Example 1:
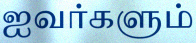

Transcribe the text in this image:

ஐவர்களும்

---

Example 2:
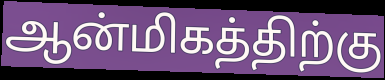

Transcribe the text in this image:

ஆன்மிகத்திற்கு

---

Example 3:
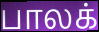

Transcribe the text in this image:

பாலக்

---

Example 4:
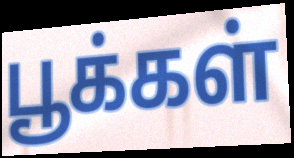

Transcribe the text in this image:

பூக்கள்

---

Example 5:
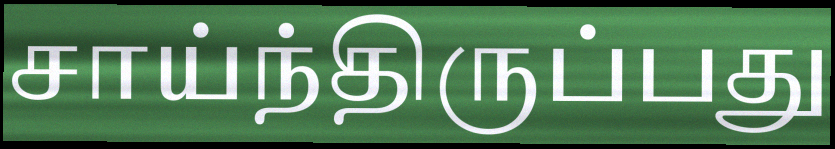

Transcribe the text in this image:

சாய்ந்திருப்பது